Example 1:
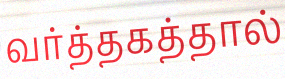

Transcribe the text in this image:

வர்த்தகத்தால்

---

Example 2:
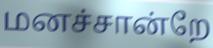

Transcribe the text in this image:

மனச்சான்றே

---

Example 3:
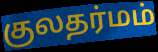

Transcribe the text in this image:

குலதர்மம்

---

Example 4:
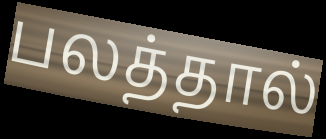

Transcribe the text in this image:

பலத்தால்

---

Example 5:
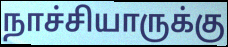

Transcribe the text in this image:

நாச்சியாருக்கு